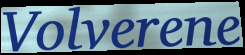
Volverene